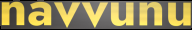
navvunu